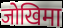
जोखिमा